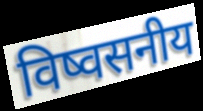
विष्वसनीय